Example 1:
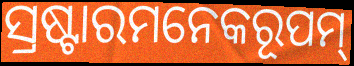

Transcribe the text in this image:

ସ୍ରଷ୍ଟାରମନେକରୂପମ୍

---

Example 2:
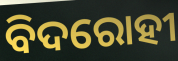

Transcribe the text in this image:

ବିଦରୋହୀ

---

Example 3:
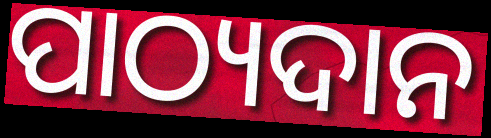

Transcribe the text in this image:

ପାଠ୍ୟଦାନ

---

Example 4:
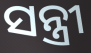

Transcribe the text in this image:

ସନ୍ତ୍ରୀ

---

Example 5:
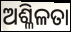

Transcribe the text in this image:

ଅଶ୍ଳିଳତା